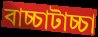
বাচ্চাটাচ্চা